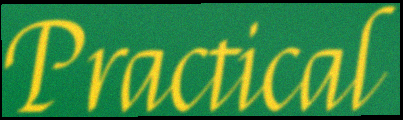
Practical